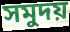
সমুদয়